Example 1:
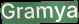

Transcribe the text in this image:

Gramya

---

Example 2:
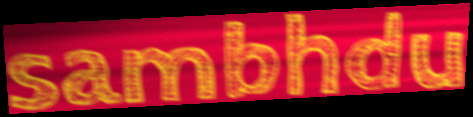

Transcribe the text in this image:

sambhdu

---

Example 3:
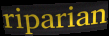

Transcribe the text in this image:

riparian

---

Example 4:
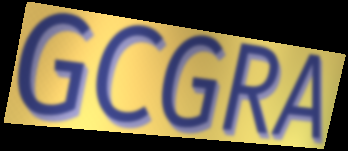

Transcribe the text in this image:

GCGRA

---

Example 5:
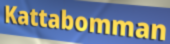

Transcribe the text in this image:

Kattabomman